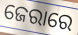
ଜେରାରେ